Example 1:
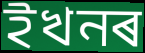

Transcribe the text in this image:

ইখনৰ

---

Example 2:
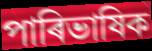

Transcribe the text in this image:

পাৰিভাষিক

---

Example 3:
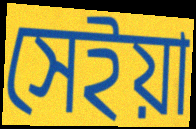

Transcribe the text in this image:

সেইয়া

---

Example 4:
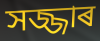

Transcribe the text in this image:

সজ্জাৰ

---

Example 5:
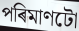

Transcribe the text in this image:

পৰিমাণটো